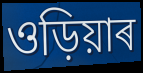
ওড়িয়াৰ